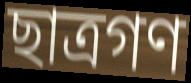
ছাত্রগণ